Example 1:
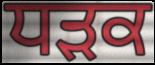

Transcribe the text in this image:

ਧਡ਼ਕ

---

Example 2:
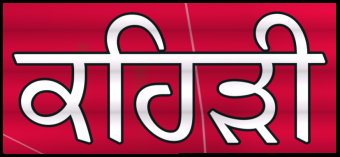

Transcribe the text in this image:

ਕਹਿੜੀ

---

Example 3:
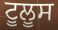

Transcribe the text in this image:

ਟੂਲੂਸ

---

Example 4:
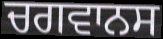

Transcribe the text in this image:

ਚਗਵਾਨਸ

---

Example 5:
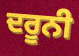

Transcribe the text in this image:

ਦਰੂਨੀ